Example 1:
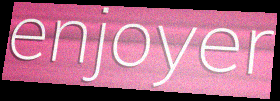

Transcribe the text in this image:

enjoyer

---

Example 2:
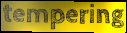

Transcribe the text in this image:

tempering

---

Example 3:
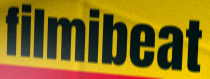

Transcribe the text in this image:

filmibeat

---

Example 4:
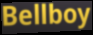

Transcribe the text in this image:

Bellboy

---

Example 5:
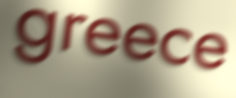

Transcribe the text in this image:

greece